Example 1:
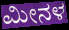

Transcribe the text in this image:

ಮೀನಳ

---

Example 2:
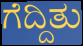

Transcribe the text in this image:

ಗೆದ್ದಿತು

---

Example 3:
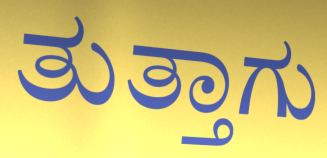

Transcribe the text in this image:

ತುತ್ತಾಗು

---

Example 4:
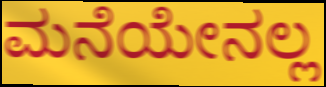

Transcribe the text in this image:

ಮನೆಯೇನಲ್ಲ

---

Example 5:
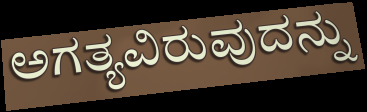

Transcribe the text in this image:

ಅಗತ್ಯವಿರುವುದನ್ನು